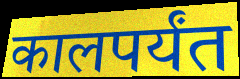
कालपर्यंत